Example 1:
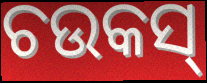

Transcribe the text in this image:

ଚଉକସ୍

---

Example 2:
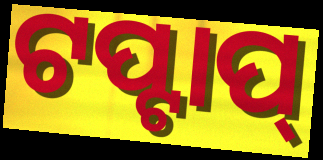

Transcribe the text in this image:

ଟପ୍ଟାପ୍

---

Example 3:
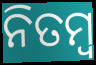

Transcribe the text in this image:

ନିତମ୍ବ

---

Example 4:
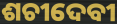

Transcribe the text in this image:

ଶଚୀଦେବୀ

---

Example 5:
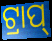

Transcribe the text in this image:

ଟ୍ରାପ୍